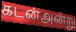
கடன்அன்று